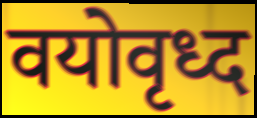
वयोवृध्द